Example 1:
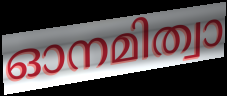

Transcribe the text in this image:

ഓനമിത്വാ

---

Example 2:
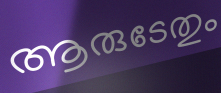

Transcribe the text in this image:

ആരുടേതും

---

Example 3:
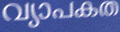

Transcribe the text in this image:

വ്യാപകത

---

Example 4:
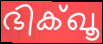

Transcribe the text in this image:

ഭിക്ഖൂ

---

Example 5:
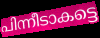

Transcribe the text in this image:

പിന്നീടാകട്ടെ